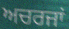
ਅਚਰਜਾਂ